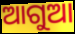
ଆଗୁଆ